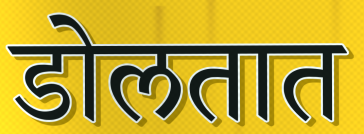
डोलतात